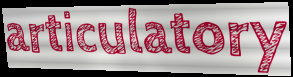
articulatory